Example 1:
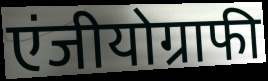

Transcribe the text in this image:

एंजीयोग्राफी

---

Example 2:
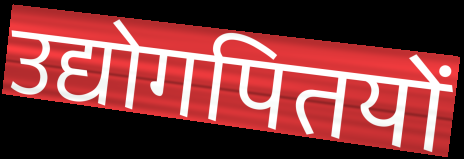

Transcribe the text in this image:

उद्योगपितयों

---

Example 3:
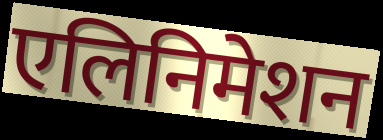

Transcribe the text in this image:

एलिनिमेशन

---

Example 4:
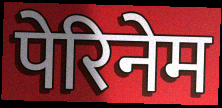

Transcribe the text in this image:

पेरिनेम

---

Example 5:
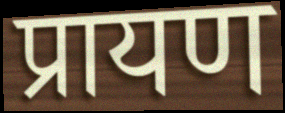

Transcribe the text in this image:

प्रायण